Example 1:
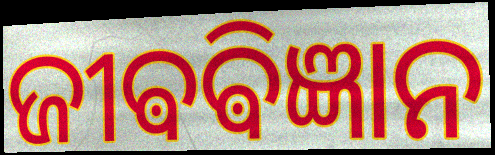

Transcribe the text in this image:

ଜୀଵଵିଜ୍ଞାନ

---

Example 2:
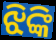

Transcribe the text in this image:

ଝିଙ୍କି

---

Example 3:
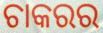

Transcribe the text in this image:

ଚାକରର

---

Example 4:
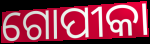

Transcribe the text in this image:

ଗୋପୀକା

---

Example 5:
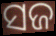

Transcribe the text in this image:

ସଜ